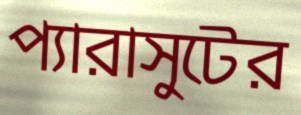
প্যারাসুটের